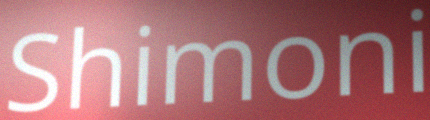
Shimoni